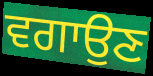
ਵਗਾਉਣ